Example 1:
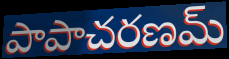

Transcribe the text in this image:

పాపాచరణమ్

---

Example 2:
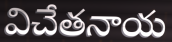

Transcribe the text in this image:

విచేతనాయ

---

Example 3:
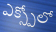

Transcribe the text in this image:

ఎక్స్పోలో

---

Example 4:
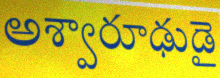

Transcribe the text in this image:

అశ్వారూఢుడై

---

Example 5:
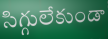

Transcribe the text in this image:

సిగ్గులేకుండా